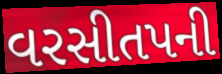
વરસીતપની